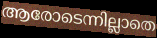
ആരോടെന്നില്ലാതെ